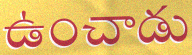
ఉంచాడు